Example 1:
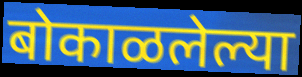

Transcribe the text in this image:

बोकाळलेल्या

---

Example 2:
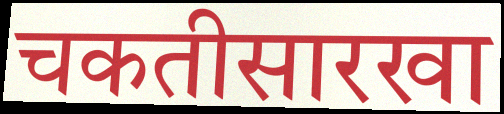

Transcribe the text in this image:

चकतीसारखा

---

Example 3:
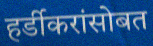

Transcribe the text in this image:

हर्डीकरांसोबत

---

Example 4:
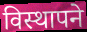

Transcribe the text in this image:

विस्थापने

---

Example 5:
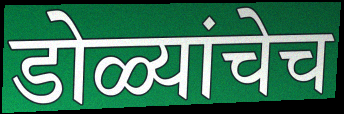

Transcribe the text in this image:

डोळ्यांचेच